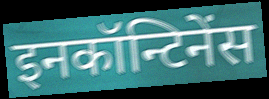
इनकॉन्टिनेंस